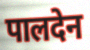
पालदेन